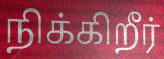
நிக்கிறீர்